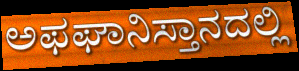
ಅಫಘಾನಿಸ್ತಾನದಲ್ಲಿ